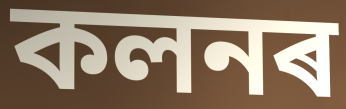
কলনৰ